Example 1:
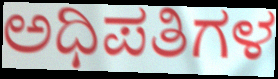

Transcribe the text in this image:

ಅಧಿಪತಿಗಳ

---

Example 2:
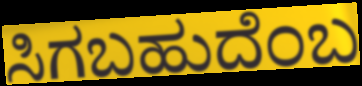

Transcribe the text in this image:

ಸಿಗಬಹುದೆಂಬ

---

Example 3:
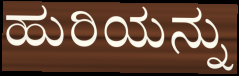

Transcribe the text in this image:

ಹುರಿಯನ್ನು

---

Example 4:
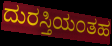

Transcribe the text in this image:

ದುರಸ್ತಿಯಂತಹ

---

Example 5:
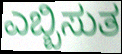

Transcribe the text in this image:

ಎಬ್ಬಿಸುತ